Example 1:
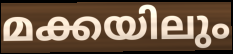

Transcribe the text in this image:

മക്കയിലും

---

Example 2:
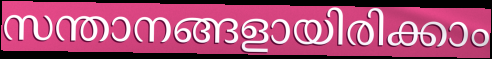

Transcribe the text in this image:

സന്താനങ്ങളായിരിക്കാം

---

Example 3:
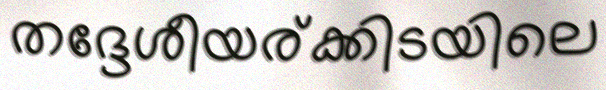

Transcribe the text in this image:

തദ്ദേശീയര്ക്കിടയിലെ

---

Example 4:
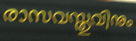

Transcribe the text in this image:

രാസവസ്തുവിനും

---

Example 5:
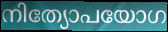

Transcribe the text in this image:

നിത്യോപയോഗ